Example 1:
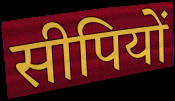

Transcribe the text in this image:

सीपियों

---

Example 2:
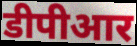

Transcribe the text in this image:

डीपीआर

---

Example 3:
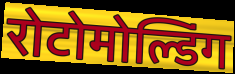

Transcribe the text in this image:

रोटोमोल्डिंग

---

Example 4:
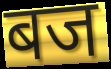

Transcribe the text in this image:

बज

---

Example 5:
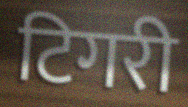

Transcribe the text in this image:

टिगरी